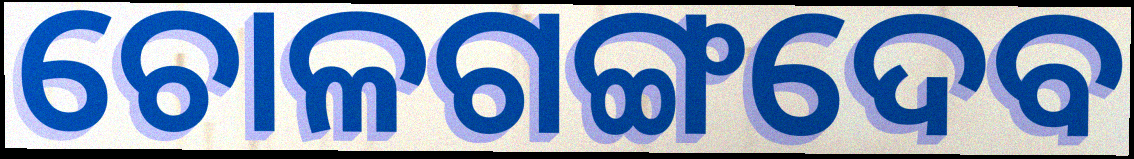
ଚୋଳଗଙ୍ଗଦେବ